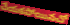
చేయకపోయినచో